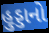
હુડ્ડાનો